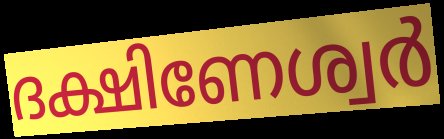
ദക്ഷിണേശ്വർ